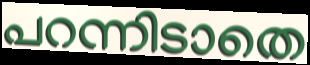
പറന്നിടാതെ